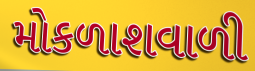
મોકળાશવાળી